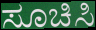
ಸೂಚಿಸಿ